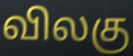
விலகு